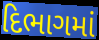
દિભાગમાં